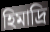
হিমাদ্রি